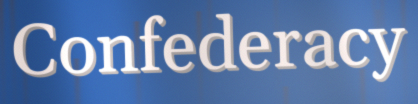
Confederacy